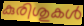
കുരിശുകൾ